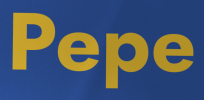
Pepe